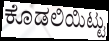
ಕೊಡಲಿಯಿಟ್ಟು